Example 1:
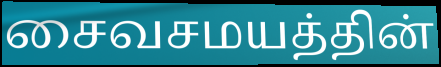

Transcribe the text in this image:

சைவசமயத்தின்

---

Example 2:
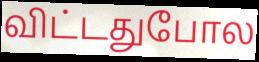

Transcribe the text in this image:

விட்டதுபோல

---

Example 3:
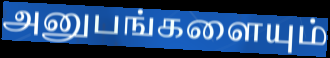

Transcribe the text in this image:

அனுபங்களையும்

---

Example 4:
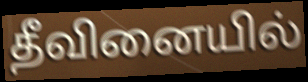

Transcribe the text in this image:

தீவினையில்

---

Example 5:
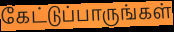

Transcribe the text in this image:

கேட்டுப்பாருங்கள்